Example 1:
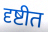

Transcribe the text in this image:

दृष्टीत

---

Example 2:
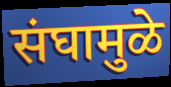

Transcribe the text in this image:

संघामुळे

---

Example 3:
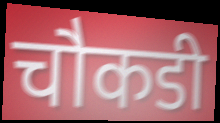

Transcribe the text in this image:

चौकडी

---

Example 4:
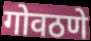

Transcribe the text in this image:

गोवठणे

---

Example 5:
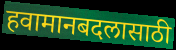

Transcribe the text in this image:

हवामानबदलासाठी